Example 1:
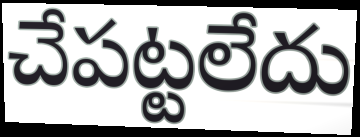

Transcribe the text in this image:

చేపట్టలేదు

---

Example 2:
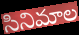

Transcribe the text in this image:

సినిమాల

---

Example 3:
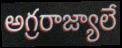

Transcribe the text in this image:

అగ్రరాజ్యాలే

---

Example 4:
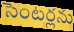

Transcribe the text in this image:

సెంటర్లను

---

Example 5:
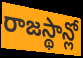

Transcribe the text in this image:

రాజస్థాన్లో